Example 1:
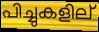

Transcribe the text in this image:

പിച്ചുകളില്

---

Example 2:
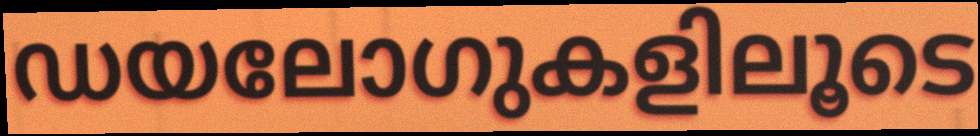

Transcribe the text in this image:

ഡയലോഗുകളിലൂടെ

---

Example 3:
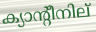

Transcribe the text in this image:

ക്യാന്റീനില്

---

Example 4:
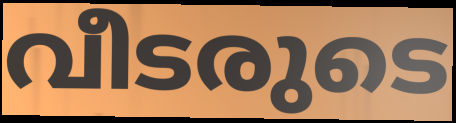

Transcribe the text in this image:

വീടരുടെ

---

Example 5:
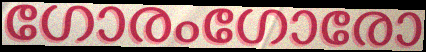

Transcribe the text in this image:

ഗോരംഗോരോ